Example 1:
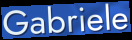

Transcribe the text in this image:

Gabriele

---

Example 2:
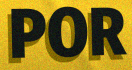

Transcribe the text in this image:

POR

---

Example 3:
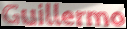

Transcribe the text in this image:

Guillermo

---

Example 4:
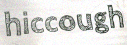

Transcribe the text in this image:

hiccough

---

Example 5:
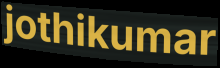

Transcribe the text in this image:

jothikumar